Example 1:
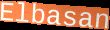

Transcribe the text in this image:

Elbasan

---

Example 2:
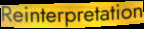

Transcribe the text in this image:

Reinterpretation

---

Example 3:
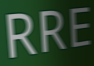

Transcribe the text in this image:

RRE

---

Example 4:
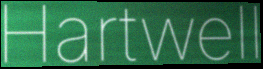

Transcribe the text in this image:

Hartwell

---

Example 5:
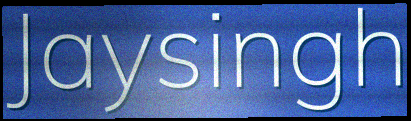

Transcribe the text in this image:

Jaysingh